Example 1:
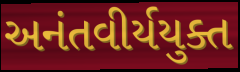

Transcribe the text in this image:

અનંતવીર્યયુક્ત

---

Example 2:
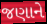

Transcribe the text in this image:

જણાને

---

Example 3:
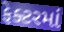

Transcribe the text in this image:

ફેક્ટરમાં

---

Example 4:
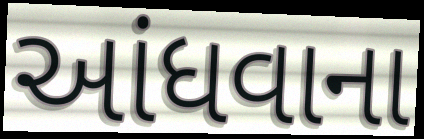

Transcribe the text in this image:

આંધવાના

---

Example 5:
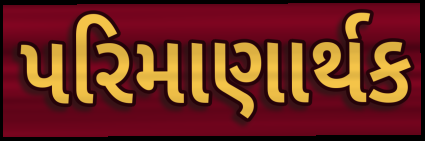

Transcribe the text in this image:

પરિમાણાર્થક